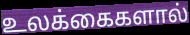
உலக்கைகளால்